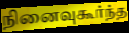
நினைவுகூர்ந்த